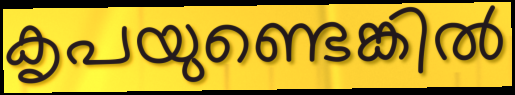
കൃപയുണ്ടെങ്കിൽ